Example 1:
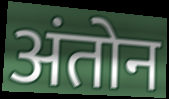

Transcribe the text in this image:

अंतोन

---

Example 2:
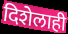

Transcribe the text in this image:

दिशेलाही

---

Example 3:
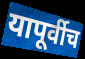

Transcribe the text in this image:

यापूर्वीच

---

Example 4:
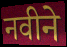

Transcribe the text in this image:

नवीने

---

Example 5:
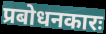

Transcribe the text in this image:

प्रबोधनकारः